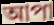
আপা